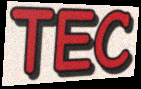
TEC